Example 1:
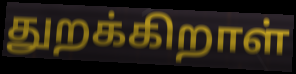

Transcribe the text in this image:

துறக்கிறாள்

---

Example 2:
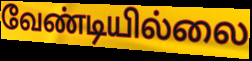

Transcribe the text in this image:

வேண்டியில்லை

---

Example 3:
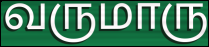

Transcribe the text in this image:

வருமாரு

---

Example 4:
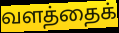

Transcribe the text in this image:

வளத்தைக்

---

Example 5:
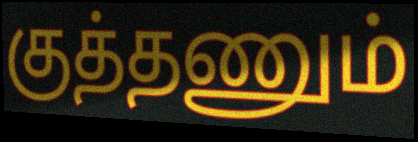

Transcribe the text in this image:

குத்தணும்